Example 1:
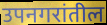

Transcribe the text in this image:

उपनगरांतील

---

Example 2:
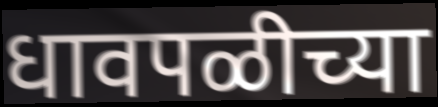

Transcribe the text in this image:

धावपळीच्या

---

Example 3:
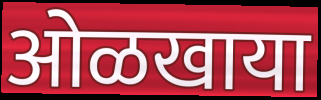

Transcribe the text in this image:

ओळखाया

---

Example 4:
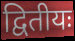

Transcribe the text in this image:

द्वितीयः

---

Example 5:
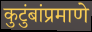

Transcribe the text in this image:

कुटुंबांप्रमाणे